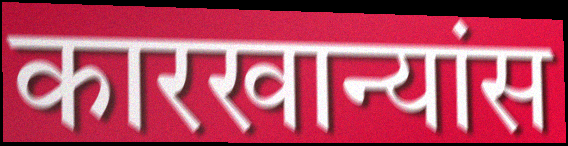
कारखान्यांस